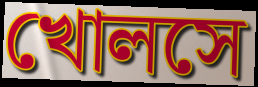
খোলসে